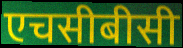
एचसीबीसी